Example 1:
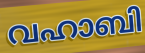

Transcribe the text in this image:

വഹാബി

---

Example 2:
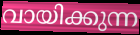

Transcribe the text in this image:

വായിക്കുന്ന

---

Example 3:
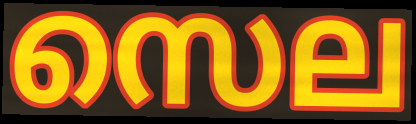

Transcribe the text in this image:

സെല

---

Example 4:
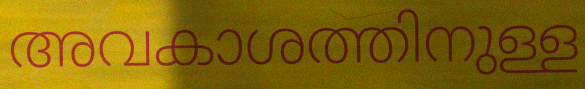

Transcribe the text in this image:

അവകാശത്തിനുള്ള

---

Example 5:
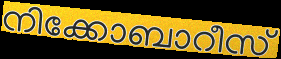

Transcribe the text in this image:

നിക്കോബാറീസ്